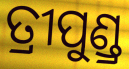
ତ୍ରୀପୁଣ୍ଡ୍ର